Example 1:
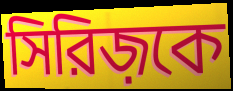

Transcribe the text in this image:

সিরিজ়কে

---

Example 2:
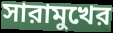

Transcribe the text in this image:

সারামুখের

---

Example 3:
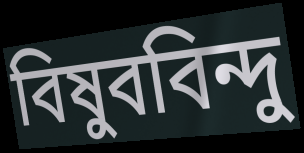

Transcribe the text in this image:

বিষুববিন্দু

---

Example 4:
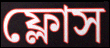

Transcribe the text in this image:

ফ্লোস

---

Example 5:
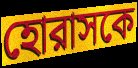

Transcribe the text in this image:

হোরাসকে